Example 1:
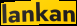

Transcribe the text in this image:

lankan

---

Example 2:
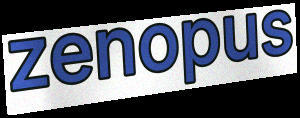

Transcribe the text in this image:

zenopus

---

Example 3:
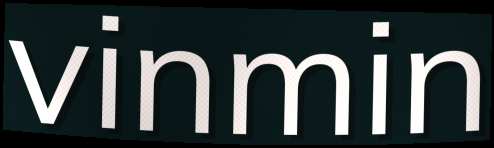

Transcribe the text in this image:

vinmin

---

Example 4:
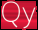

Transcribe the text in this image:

Qy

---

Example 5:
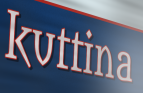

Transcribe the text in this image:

kuttina